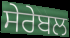
ਸੇਰੇਬਲ